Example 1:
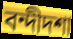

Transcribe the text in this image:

বন্দীদশা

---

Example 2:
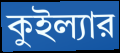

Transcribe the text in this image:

কুইল্যার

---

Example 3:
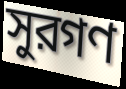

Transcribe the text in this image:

সুরগণ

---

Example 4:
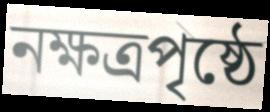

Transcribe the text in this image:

নক্ষত্রপৃষ্ঠে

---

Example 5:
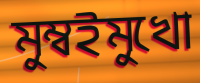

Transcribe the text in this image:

মুম্বইমুখো